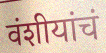
वंशीयांचं